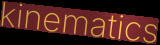
kinematics